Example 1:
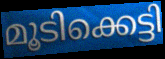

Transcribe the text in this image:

മൂടിക്കെട്ടി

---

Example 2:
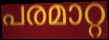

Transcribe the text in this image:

പരമാറ്റ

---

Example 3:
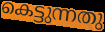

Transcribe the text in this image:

കെട്ടുന്നതു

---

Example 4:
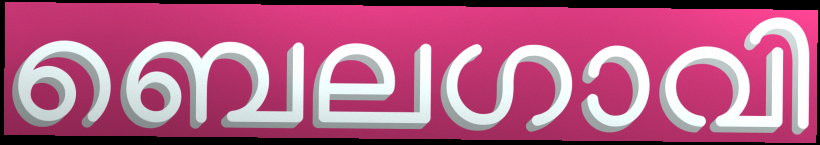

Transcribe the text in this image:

ബെലഗാവി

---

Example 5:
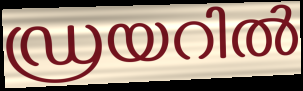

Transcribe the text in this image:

ഡ്രയറിൽ